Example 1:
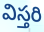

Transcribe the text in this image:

విస్తరి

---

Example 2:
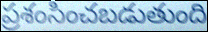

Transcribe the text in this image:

ప్రశంసించబడుతుంది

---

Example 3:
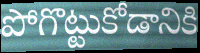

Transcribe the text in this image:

పోగొట్టుకోడానికి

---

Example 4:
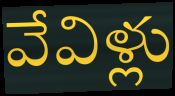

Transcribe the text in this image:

వేవిళ్లు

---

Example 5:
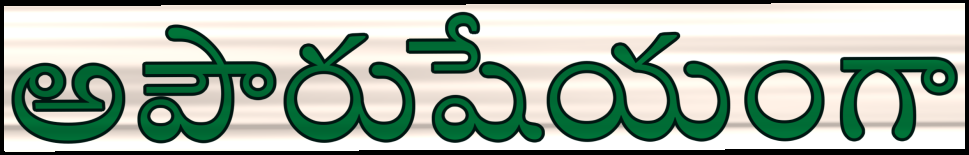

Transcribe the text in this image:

అపౌరుషేయంగా